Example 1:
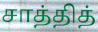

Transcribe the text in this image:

சாத்தித்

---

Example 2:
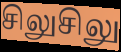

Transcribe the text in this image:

சிலுசிலு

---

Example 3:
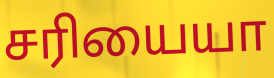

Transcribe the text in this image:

சரியையா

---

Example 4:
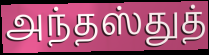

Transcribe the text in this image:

அந்தஸ்துத்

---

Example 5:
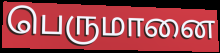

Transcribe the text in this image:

பெருமானை